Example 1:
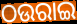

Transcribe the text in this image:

ଠଉରାଇ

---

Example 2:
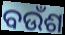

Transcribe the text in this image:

ବଉଁଶ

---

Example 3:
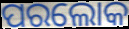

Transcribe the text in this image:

ପରଲୋକ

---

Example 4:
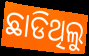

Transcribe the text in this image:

ଛାଡିଥିଲୁ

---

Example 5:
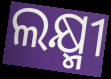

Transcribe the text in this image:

ଲକ୍ଷ୍ମୀ